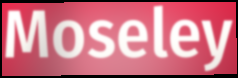
Moseley